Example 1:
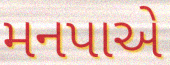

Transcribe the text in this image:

મનપાએ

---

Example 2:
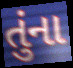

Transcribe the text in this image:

તુંના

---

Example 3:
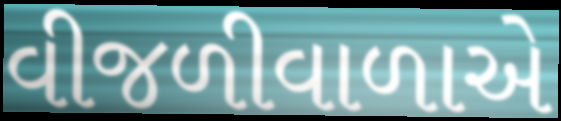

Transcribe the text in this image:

વીજળીવાળાએ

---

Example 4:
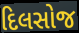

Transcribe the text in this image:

દિલસોજ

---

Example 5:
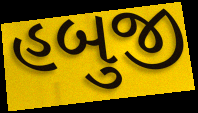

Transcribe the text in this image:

હબુજી